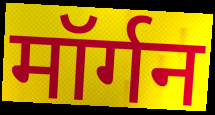
मॉर्गन